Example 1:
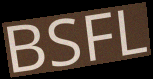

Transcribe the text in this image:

BSFL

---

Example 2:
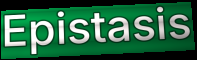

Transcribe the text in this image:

Epistasis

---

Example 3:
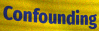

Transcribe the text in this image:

Confounding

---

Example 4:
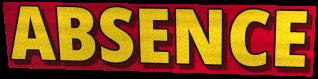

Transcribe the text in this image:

ABSENCE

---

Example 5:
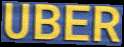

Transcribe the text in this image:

UBER